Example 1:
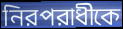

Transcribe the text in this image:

নিরপরাধীকে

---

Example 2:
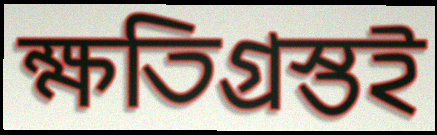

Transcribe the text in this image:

ক্ষতিগ্রস্তই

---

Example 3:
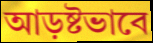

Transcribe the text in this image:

আড়ষ্টভাবে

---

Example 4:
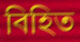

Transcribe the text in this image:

বিহিত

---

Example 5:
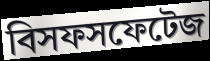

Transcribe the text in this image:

বিসফসফেটেজ